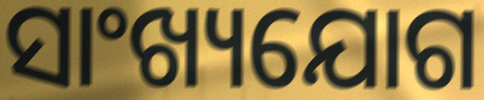
ସାଂଖ୍ୟଯୋଗ